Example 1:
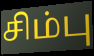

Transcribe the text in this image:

சிம்பு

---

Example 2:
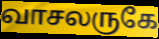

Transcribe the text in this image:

வாசலருகே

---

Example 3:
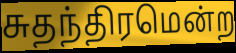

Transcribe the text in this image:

சுதந்திரமென்ற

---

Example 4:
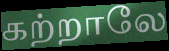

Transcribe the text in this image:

கற்றாலே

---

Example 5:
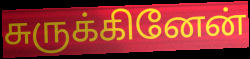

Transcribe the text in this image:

சுருக்கினேன்